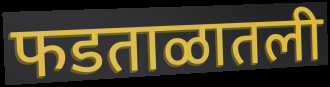
फडताळातली